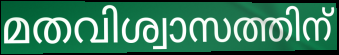
മതവിശ്വാസത്തിന്